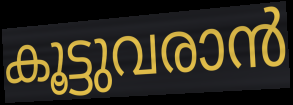
കൂട്ടുവരാൻ